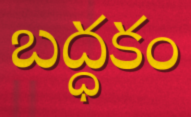
బద్ధకం